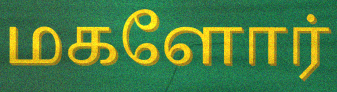
மகளோர்